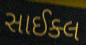
સાઈક્લ